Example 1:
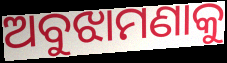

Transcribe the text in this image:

ଅବୁଝାମଣାକୁ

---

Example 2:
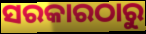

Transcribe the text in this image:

ସରକାରଠାରୁ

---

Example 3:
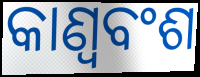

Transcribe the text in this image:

କାଣ୍ୱବଂଶ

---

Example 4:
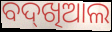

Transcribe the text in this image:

ବଦ୍‌ଖିଆଲ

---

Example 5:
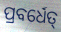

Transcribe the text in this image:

ପ୍ରବର୍ଧେତ୍